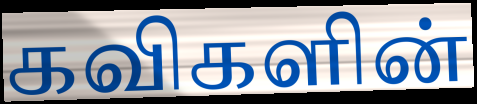
கவிகளின்